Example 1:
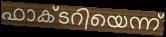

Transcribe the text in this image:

ഫാക്ടറിയെന്ന്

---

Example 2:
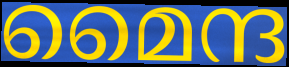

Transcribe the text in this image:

മൈന്ദ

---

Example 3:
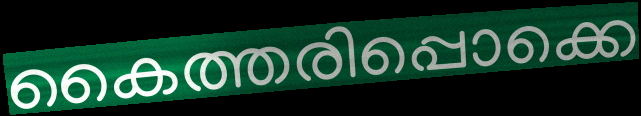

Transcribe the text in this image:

കൈത്തരിപ്പൊക്കെ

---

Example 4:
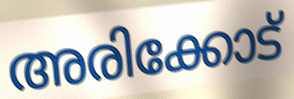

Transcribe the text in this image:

അരിക്കോട്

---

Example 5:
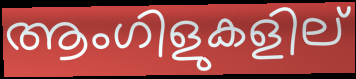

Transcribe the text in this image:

ആംഗിളുകളില്